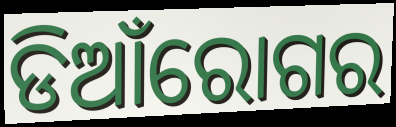
ଡିଆଁରୋଗର